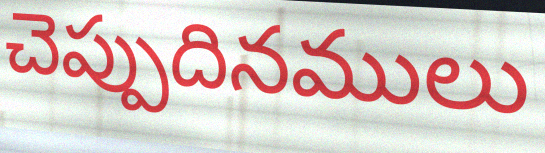
చెప్పుదినములు